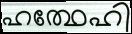
ഹത്ഥേഹി